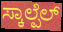
ಸ್ಕಾಲ್ಪೆಲ್